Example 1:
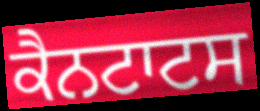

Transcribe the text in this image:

ਕੈਨਟਾਟਸ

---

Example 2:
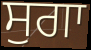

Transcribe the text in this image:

ਸੁਗਾ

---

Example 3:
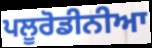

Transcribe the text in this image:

ਪਲੂਰੋਡੀਨੀਆ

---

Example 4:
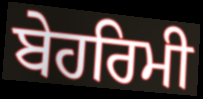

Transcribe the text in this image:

ਬੇਹਰਿਮੀ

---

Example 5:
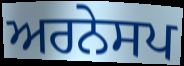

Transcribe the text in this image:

ਅਰਨੇਸਪ